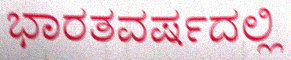
ಭಾರತವರ್ಷದಲ್ಲಿ